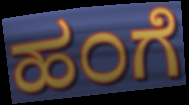
ಹಂಗೆ